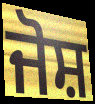
ਜੋਸ਼